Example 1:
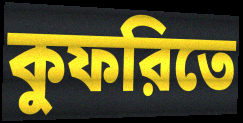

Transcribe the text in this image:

কুফরিতে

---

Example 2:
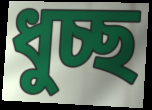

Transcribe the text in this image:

ধুচ্ছ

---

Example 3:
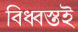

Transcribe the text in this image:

বিধ্বস্তই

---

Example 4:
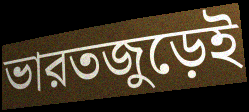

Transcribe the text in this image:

ভারতজুড়েই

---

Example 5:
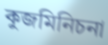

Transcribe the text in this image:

কুজমিনিচনা